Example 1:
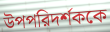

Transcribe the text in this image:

উপপরিদর্শককে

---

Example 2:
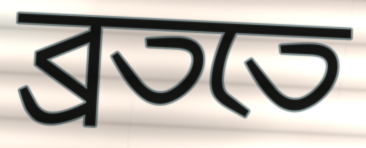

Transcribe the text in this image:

ব্রততে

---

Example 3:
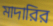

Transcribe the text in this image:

মাদারির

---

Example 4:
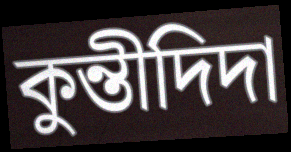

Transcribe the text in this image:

কুন্তীদিদা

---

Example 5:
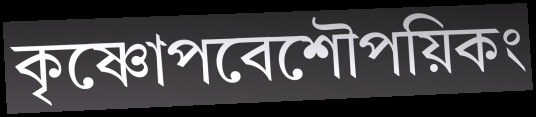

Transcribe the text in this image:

কৃষ্ণোপবেশৌপয়িকং